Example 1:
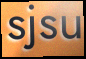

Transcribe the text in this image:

sjsu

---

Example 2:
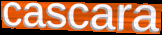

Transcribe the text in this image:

cascara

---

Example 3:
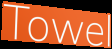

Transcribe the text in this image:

Towel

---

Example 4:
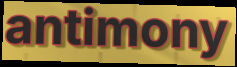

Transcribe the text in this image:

antimony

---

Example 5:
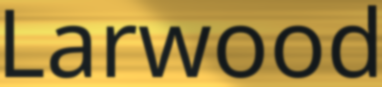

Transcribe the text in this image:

Larwood